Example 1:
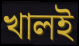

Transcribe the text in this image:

খালই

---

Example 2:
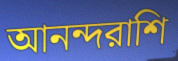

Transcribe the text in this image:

আনন্দরাশি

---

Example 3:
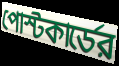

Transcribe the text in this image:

পোস্টকার্ডের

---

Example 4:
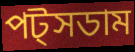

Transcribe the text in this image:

পট্‌সডাম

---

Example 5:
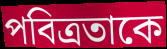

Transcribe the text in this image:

পবিত্রতাকে